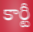
కార్టీ